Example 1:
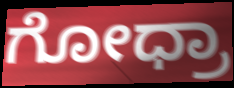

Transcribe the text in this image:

ಗೋಧ್ರಾ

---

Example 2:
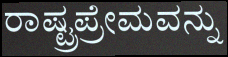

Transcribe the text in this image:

ರಾಷ್ಟ್ರಪ್ರೇಮವನ್ನು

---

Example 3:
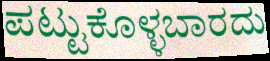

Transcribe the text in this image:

ಪಟ್ಟುಕೊಳ್ಳಬಾರದು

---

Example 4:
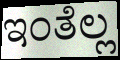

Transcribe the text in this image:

ಇಂತೆಲ್ಲ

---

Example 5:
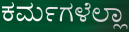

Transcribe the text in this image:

ಕರ್ಮಗಳೆಲ್ಲಾ